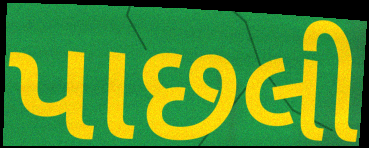
પાછલી